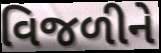
વિજળીને